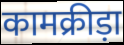
कामक्रीड़ा